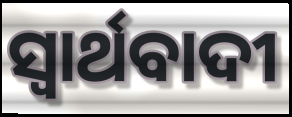
ସ୍ୱାର୍ଥବାଦୀ